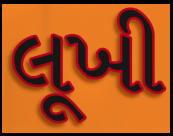
લૂખી